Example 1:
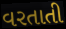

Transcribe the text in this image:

વરતાતી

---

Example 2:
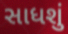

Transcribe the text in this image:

સાધશું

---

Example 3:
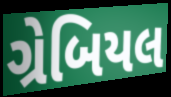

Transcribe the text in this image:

ગ્રેબિયલ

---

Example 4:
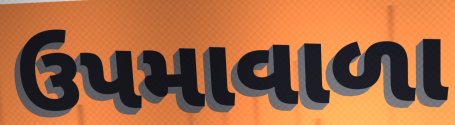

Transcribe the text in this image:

ઉપમાવાળા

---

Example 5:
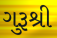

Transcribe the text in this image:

ગુરૂશ્રી